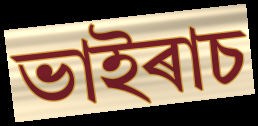
ভাইৰাচ